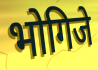
भोगिजे